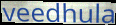
veedhula